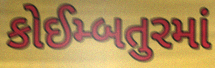
કોઈમ્બતુરમાં